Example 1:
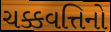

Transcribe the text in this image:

ચક્કવત્તિનો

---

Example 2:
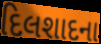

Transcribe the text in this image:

દિલશાદના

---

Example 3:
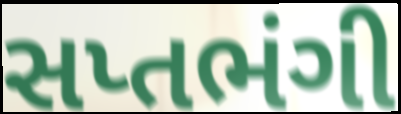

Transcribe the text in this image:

સપ્તભંગી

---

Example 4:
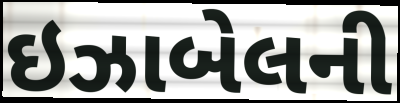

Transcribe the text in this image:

ઇઝાબેલની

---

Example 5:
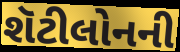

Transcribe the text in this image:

શૅટીલોનની